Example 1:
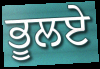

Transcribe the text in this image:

ਭੂਲਏ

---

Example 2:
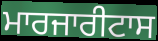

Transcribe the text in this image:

ਮਾਰਜਾਰੀਟਾਸ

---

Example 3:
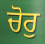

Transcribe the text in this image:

ਚੋਰੁ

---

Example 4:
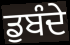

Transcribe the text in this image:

ਡੁਬੰਦੇ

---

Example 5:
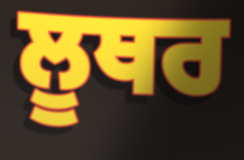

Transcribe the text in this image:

ਲੂਥਰ